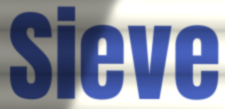
Sieve